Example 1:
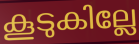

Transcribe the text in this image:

കൂടുകില്ലേ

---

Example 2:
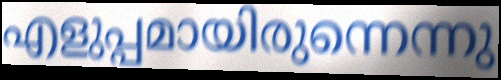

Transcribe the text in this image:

എളുപ്പമായിരുന്നെന്നു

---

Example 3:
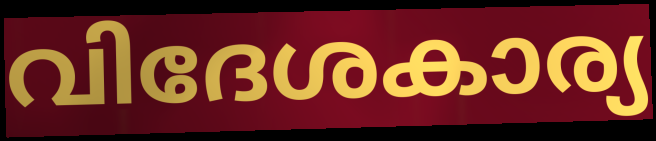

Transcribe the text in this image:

വിദേശകാര്യ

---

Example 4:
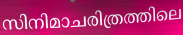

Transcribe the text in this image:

സിനിമാചരിത്രത്തിലെ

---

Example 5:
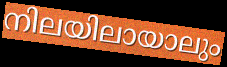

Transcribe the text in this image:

നിലയിലായാലും